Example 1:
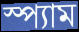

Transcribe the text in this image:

স্প্যাম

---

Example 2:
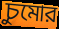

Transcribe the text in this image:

চুমোর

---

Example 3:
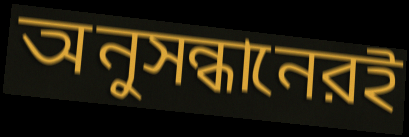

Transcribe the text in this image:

অনুসন্ধানেরই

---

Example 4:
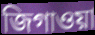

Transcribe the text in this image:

জিগাওয়া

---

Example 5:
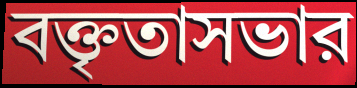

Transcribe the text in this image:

বক্তৃতাসভার